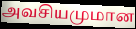
அவசியமுமான